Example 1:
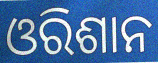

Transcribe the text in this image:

ଓରିଶାନ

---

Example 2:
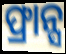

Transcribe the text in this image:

ଫ୍ରାନ୍ସ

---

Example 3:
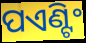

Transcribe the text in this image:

ପଏଣ୍ଟିଂ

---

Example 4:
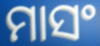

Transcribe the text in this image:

ମାସଂ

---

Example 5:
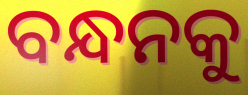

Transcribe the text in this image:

ବନ୍ଧନକୁ